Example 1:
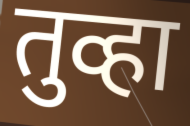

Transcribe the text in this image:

तुव्हा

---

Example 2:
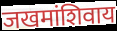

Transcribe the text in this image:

जखमांशिवाय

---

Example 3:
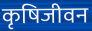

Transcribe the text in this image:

कृषिजीवन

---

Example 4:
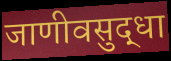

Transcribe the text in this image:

जाणीवसुद्धा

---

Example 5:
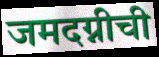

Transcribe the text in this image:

जमदग्नीची